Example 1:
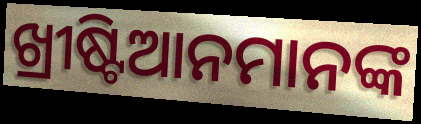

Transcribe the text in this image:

ଖ୍ରୀଷ୍ଟିଆନମାନଙ୍କ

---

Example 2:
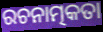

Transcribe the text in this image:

ରଚନାତ୍ମକତା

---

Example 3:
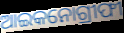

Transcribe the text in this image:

ଆଇକନୋଗ୍ରୀଫୀ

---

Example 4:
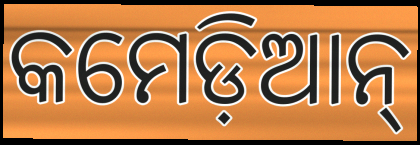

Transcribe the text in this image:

କମେଡ଼ିଆନ୍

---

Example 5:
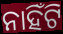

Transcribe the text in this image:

ନାହିଁଟି